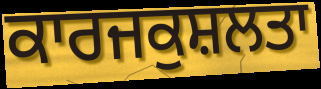
ਕਾਰਜਕੁਸ਼ਲਤਾ